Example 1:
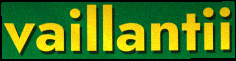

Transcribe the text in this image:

vaillantii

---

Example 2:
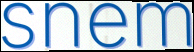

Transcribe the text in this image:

snem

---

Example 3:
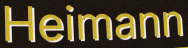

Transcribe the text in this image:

Heimann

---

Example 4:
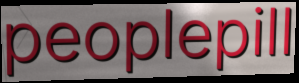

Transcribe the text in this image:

peoplepill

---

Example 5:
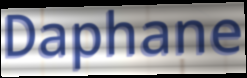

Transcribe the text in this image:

Daphane